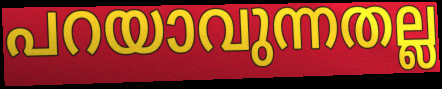
പറയാവുന്നതല്ല